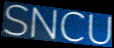
SNCU